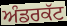
ਅੰਡਰਕੱਟ